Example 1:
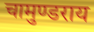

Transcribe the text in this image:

चामुण्डराय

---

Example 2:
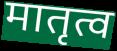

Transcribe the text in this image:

मातृत्व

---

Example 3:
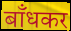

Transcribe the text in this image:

बाँधकर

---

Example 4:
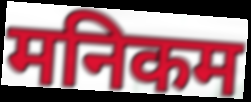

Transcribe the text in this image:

मनिकम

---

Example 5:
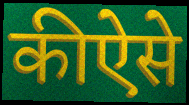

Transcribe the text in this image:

कीऐसे